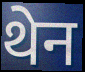
थेन